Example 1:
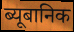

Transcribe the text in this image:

ब्यूबानिक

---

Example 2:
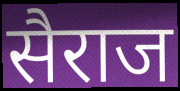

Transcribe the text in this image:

सैराज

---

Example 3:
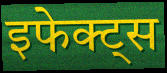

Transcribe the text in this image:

इफेक्ट्स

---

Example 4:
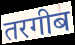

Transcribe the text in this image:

तरगीब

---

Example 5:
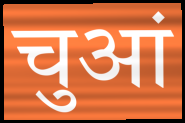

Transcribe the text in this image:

चुआं